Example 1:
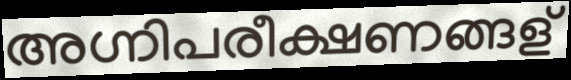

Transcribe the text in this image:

അഗ്നിപരീക്ഷണങ്ങള്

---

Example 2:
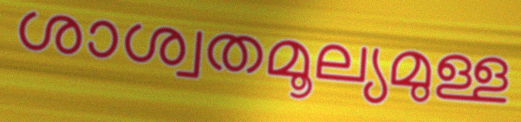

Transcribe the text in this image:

ശാശ്വതമൂല്യമുള്ള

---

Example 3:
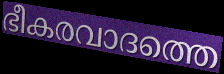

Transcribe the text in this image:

ഭീകരവാദത്തെ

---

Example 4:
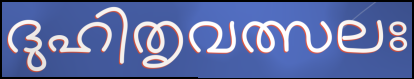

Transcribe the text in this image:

ദുഹിതൃവത്സലഃ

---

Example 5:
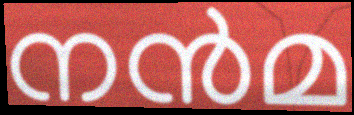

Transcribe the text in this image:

നൻമ